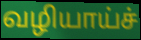
வழியாய்ச்